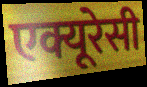
एक्यूरेसी